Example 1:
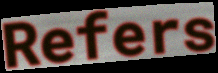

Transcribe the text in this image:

Refers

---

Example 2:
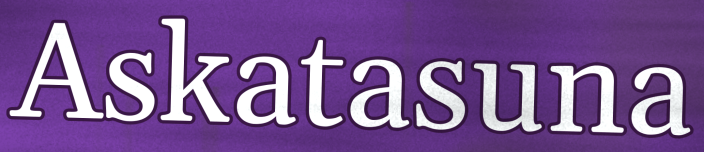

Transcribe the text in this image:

Askatasuna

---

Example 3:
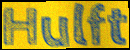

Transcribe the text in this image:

Hulft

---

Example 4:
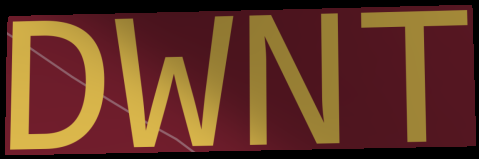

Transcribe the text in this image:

DWNT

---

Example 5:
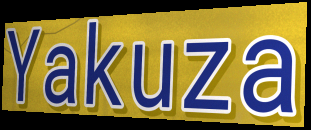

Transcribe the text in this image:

Yakuza